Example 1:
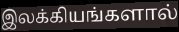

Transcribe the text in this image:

இலக்கியங்களால்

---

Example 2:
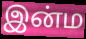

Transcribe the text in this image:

இன்ம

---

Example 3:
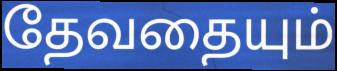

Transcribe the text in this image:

தேவதையும்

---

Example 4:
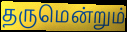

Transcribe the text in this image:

தருமென்றும்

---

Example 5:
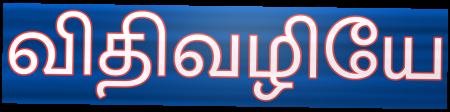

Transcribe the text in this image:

விதிவழியே